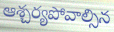
ఆశ్చర్యపోవాల్సిన